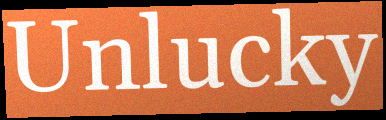
Unlucky